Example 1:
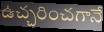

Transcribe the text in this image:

ఉచ్చరించగానే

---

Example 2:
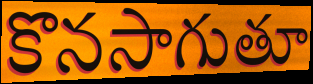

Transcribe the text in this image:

కొనసాగుతూ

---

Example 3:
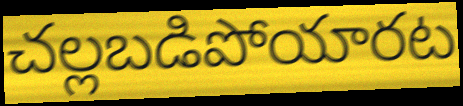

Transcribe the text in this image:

చల్లబడిపోయారట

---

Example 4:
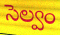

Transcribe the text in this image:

సెల్వం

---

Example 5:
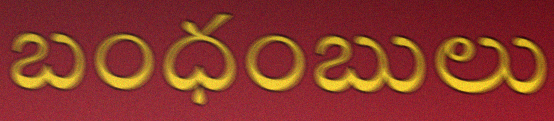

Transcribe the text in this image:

బంధంబులు